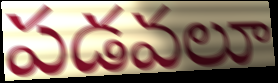
పడవలూ